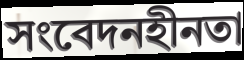
সংবেদনহীনতা